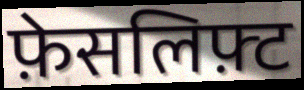
फ़ेसलिफ़्ट